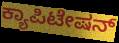
ಕ್ಯಾಪಿಟೇಷನ್